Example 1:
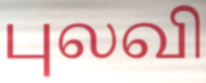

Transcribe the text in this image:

புலவி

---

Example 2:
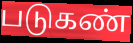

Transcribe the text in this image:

படுகண்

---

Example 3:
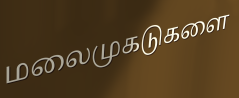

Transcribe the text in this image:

மலைமுகடுகளை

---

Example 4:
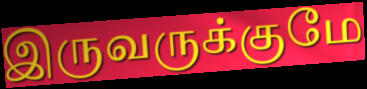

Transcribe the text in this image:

இருவருக்குமே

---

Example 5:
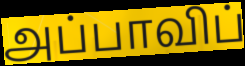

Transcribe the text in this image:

அப்பாவிப்